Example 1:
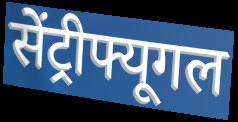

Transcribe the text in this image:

सेंट्रीफ्यूगल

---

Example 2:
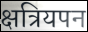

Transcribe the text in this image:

क्षत्रियपन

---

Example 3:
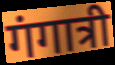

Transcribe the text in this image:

गंगात्री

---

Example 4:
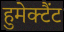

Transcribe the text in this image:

हुमेक्टैंट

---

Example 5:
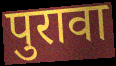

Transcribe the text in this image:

पुरावा